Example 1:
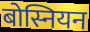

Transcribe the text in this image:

बोस्नियन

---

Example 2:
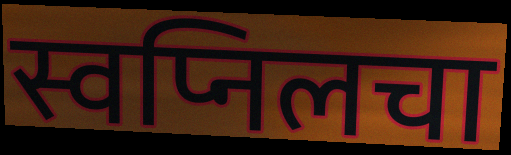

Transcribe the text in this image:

स्वप्निलचा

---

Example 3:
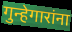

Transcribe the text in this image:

गुन्हेगारांना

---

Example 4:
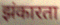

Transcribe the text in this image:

झंकारता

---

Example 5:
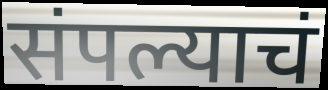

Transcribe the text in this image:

संपल्याचं